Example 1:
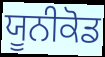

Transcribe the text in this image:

ਯੂਨੀਕੋਡ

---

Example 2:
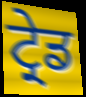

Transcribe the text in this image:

ਟ੍ਰੇਡ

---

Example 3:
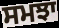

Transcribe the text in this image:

ਸਮਝਾ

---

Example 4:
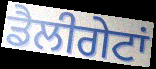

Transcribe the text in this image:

ਡੈਲੀਗੇਟਾਂ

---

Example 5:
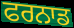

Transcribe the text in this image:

ਫਰਨਾਡ